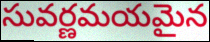
సువర్ణమయమైన